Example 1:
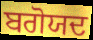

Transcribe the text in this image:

ਬਗੋਯਦ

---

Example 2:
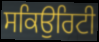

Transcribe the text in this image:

ਸਕਿਉਰਿਟੀ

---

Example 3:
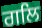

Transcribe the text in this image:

ਗਲਿ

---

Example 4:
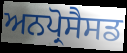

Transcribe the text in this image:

ਅਨਪ੍ਰੋਸੈਸਡ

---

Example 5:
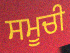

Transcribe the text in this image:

ਸਮੂਚੀ